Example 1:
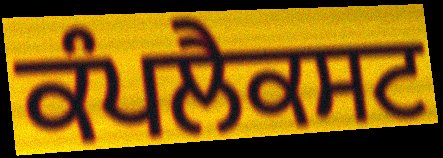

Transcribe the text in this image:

ਕੰਪਲੈਕਸਟ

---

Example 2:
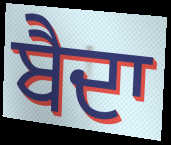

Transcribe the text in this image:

ਬੈਦਾ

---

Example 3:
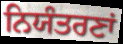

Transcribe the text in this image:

ਨਿਯੰਤਰਣਾਂ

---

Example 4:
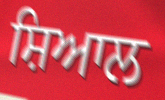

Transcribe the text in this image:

ਸ਼ਿਆਲ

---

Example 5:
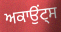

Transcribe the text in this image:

ਅਕਾਉਂਟ੍ਸ